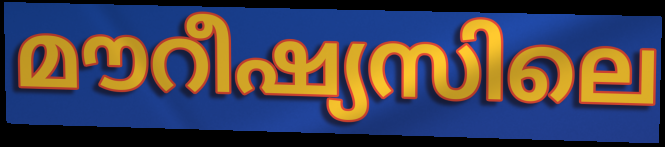
മൗറീഷ്യസിലെ